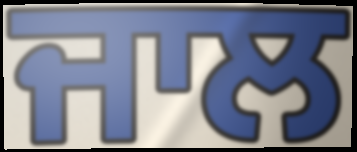
ਜਾਲ